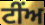
ਟੀਂਅ